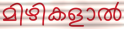
മിഴികളാൽ